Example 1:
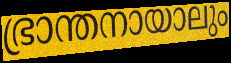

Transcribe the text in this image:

ഭ്രാന്തനായാലും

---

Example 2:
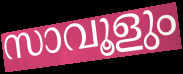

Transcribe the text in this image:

സാവൂളും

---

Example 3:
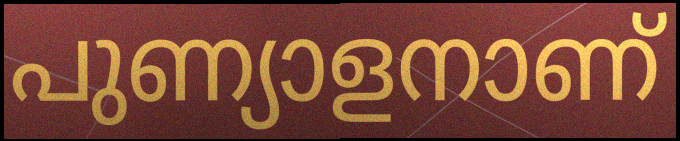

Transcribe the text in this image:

പുണ്യാളനാണ്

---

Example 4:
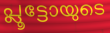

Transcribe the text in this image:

പ്ലൂട്ടോയുടെ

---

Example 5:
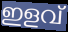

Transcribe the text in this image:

ഇളവ്